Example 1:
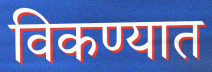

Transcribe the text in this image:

विकण्यात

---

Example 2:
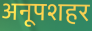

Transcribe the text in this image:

अनूपशहर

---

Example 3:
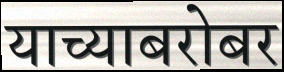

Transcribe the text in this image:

याच्याबरोबर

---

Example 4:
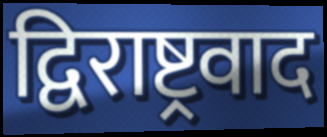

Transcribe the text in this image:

द्विराष्ट्रवाद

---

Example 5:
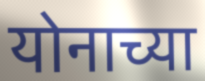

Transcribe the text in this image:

योनाच्या